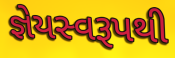
જ્ઞેયસ્વરૂપથી